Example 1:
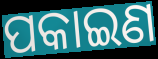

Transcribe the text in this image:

ପକାଇଣ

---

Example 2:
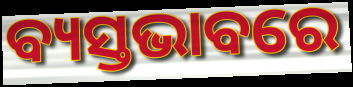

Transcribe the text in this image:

ବ୍ୟସ୍ତଭାବରେ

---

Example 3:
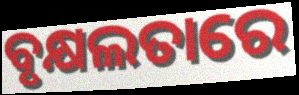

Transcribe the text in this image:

ବୃକ୍ଷଲତାରେ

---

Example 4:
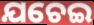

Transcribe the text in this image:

ଯଚେଇ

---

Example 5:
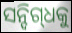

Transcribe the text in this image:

ସନ୍ଦିଗ୍‌ଧକୁ